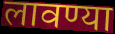
लावण्या